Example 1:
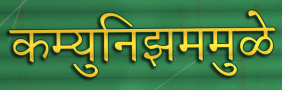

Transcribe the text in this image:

कम्युनिझममुळे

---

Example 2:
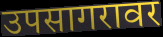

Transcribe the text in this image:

उपसागरावर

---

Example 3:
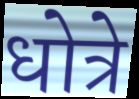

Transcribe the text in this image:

धोत्रे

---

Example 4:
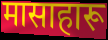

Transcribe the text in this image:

मासाहारू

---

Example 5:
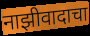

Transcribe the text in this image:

नाझीवादाचा